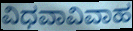
ವಿಧವಾವಿವಾಹ